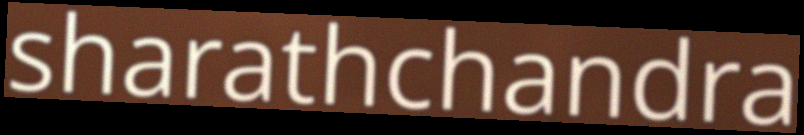
sharathchandra